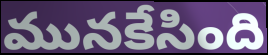
మునకేసింది